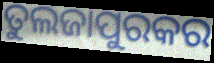
ତୁଲଜାପୁରକର